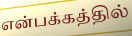
என்பக்கத்தில்